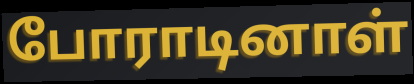
போராடினாள்